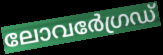
ലോവർേഗ്രഡ്